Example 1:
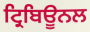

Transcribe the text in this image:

ਟ੍ਰਿਬਿਊਨਲ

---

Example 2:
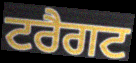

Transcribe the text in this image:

ਟਰੈਗਟ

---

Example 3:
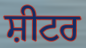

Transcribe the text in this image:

ਸ਼ੀਟਰ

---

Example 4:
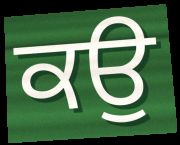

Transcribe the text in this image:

ਕਉ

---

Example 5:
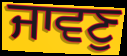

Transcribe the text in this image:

ਜਾਵਣੁ